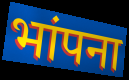
भांपना